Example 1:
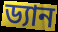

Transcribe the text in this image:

ড্যান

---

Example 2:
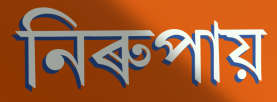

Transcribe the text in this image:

নিৰুপায়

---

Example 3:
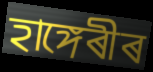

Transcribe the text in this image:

হাঙ্গেৰীৰ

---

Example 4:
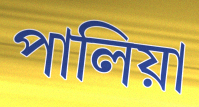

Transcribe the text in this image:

পালিয়া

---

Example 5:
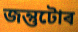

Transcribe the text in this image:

জন্তুটোৰ